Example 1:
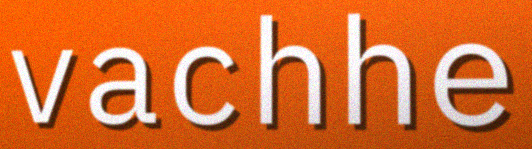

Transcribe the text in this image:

vachhe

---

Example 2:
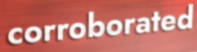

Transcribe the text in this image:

corroborated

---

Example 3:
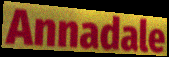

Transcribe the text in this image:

Annadale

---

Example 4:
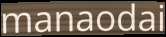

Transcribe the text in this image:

manaodai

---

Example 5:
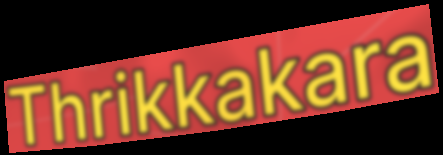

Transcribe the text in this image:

Thrikkakara